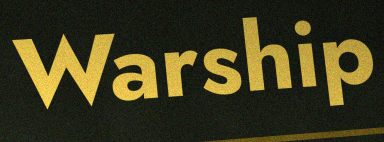
Warship